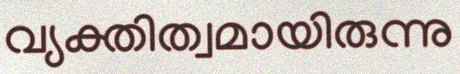
വ്യക്തിത്വമായിരുന്നു